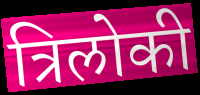
त्रिलोकी